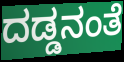
ದಡ್ಡನಂತೆ